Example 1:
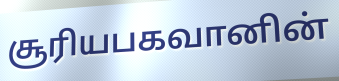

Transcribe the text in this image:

சூரியபகவானின்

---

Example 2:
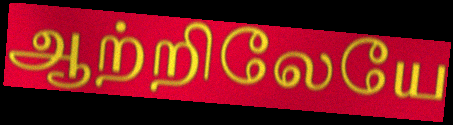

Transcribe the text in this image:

ஆற்றிலேயே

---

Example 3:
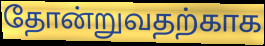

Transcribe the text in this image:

தோன்றுவதற்காக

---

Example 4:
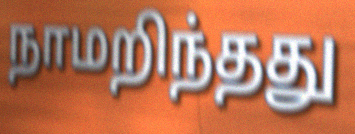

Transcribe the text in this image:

நாமறிந்தது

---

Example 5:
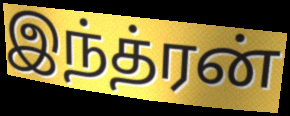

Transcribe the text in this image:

இந்த்ரன்